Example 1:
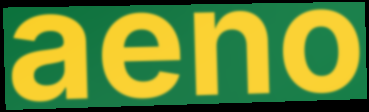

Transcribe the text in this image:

aeno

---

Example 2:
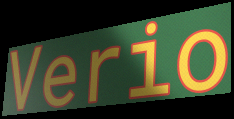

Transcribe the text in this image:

Verio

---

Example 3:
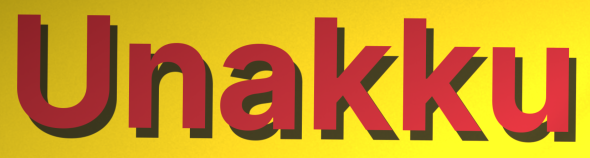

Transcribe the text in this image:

Unakku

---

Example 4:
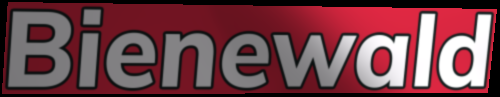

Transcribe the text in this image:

Bienewald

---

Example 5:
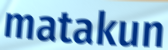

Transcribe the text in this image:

matakun